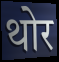
थोर